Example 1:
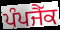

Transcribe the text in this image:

ਪੰਪਜੈੱਕ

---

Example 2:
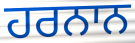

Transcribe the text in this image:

ਹਰਨਾਨ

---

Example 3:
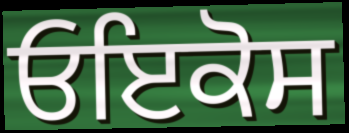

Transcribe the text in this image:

ਓਇਕੋਸ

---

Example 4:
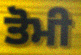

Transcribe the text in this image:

ਤੋਮੀ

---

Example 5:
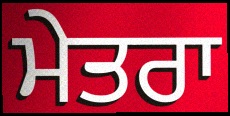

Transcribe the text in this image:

ਮੇਤਰਾ